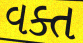
વક્ત